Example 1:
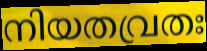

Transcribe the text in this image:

നിയതവ്രതഃ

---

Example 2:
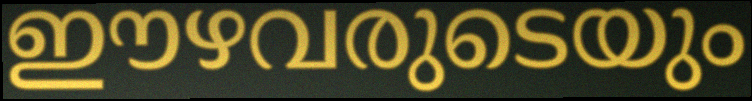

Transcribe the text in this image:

ഈഴവരുടെയും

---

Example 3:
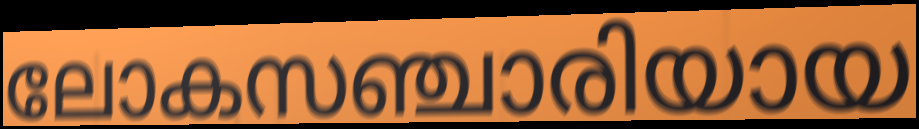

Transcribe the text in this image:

ലോകസഞ്ചാരിയായ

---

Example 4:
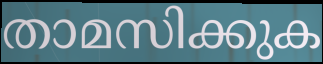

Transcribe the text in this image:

താമസിക്കുക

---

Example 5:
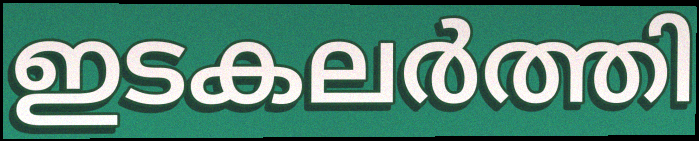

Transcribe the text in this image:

ഇടകലർത്തി